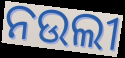
ନଉଲୀ